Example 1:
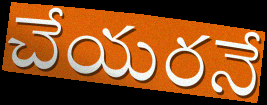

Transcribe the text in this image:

చేయరనే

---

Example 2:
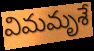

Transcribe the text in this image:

విమమృశే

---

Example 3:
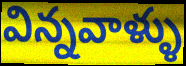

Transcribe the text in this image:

విన్నవాళ్ళు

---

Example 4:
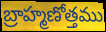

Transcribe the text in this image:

బ్రాహ్మణోత్తము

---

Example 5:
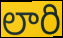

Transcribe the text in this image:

లారి